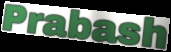
Prabash